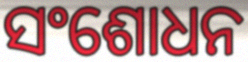
ସଂଶୋଧନ